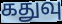
கதுவு